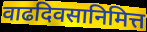
वाढदिवसानिमित्त